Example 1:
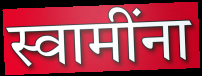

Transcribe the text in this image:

स्वामींना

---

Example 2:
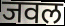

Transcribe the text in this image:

जवल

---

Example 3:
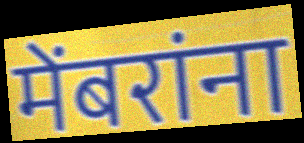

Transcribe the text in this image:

मेंबरांना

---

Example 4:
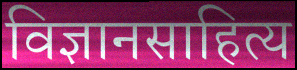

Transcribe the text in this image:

विज्ञानसाहित्य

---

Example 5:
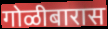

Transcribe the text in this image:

गोळीबारास